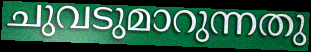
ചുവടുമാറുന്നതു